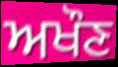
ਅਖੌਣ